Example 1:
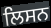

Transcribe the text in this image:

ਲਿਸਨ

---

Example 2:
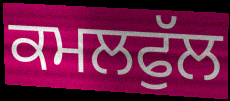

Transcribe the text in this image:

ਕਮਲਫੁੱਲ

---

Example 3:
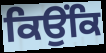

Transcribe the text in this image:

ਕਿਉਂਕਿ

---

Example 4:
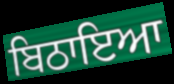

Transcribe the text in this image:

ਬਿਠਾਇਆ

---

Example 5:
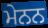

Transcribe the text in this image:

ਮੇਨਨ